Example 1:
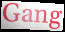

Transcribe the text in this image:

Gang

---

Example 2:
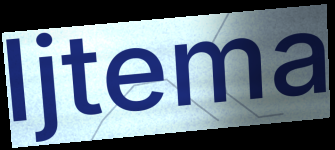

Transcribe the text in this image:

Ijtema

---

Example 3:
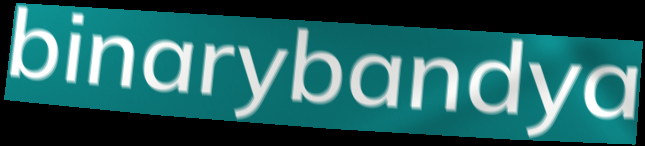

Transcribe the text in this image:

binarybandya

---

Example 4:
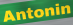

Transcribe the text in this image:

Antonin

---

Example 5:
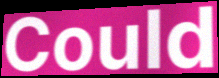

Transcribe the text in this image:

Could